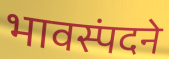
भावस्पंदने